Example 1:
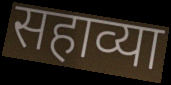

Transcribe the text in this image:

सहाव्या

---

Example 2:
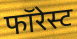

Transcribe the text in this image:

फॉरेस्ट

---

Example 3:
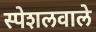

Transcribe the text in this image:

स्पेशलवाले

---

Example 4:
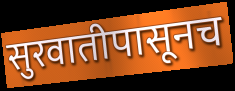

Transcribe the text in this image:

सुरवातीपासूनच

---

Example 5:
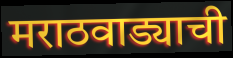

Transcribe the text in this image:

मराठवाड्याची